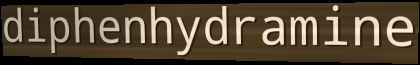
diphenhydramine